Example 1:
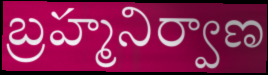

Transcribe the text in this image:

బ్రహ్మనిర్వాణ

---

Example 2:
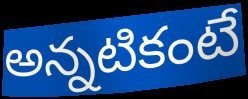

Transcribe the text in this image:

అన్నటికంటే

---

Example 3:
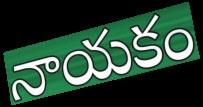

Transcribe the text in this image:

నాయకం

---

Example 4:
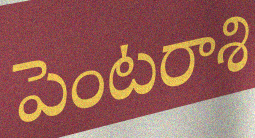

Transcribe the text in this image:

పెంటరాశి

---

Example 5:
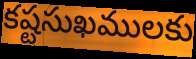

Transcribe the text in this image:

కష్టసుఖములకు